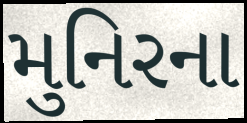
મુનિરના